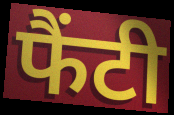
फैंटी